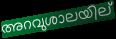
അറവുശാലയില്